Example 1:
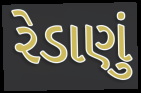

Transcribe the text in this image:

રેડાણું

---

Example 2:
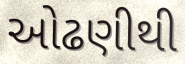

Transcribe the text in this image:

ઓઢણીથી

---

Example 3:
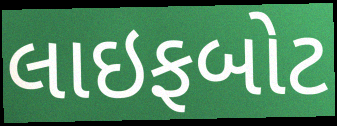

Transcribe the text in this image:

લાઇફબોટ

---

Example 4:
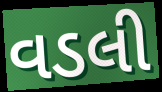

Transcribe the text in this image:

વડલી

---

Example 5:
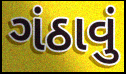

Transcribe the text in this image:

ગંઠાવું